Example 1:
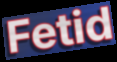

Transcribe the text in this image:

Fetid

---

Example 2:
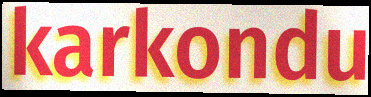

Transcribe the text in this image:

karkondu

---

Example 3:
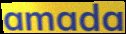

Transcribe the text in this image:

amada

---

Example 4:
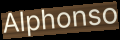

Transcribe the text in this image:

Alphonso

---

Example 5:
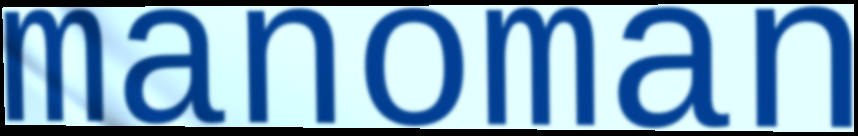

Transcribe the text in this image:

manoman